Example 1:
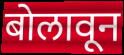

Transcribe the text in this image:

बोलावून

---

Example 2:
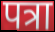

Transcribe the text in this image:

पत्रा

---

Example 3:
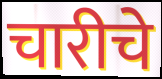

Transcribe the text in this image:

चारीचे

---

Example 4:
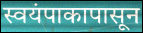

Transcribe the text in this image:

स्वयंपाकापासून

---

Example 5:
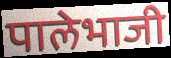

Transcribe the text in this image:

पालेभाजी